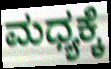
ಮಧ್ಯಕ್ಕೆ